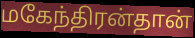
மகேந்திரன்தான்